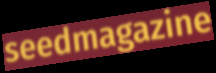
seedmagazine